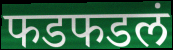
फडफडलं